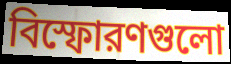
বিস্ফোরণগুলো